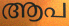
ആപ